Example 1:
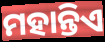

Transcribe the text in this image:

ମହାନ୍ତିଏ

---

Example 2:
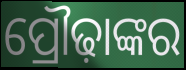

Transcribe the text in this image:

ପ୍ରୌଢ଼ାଙ୍କର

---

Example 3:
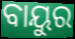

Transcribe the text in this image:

ବାୟୁର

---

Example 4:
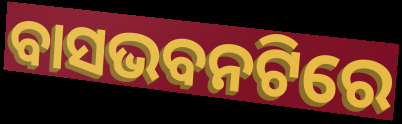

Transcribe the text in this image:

ବାସଭବନଟିରେ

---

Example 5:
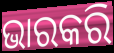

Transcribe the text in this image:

ଭାରକରି